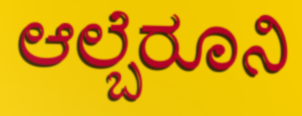
ಆಲ್ಬೆರೂನಿ